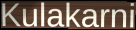
Kulakarni